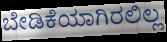
ಬೇಡಿಕೆಯಾಗಿರಲಿಲ್ಲ